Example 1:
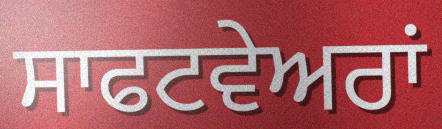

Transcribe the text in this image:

ਸਾਫਟਵੇਅਰਾਂ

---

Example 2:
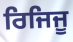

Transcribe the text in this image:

ਰਿਜਿਜੂ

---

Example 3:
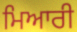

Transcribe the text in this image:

ਮਿਆਰੀ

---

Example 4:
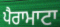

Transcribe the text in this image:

ਪੈਰਾਮਾਟਾ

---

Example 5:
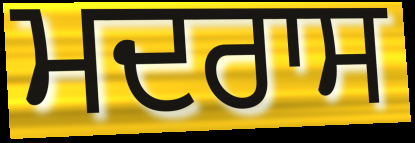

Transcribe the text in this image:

ਮਦਰਾਸ